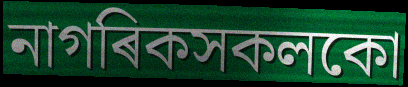
নাগৰিকসকলকো